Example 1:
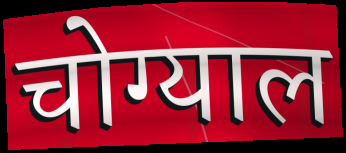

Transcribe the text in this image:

चोग्याल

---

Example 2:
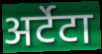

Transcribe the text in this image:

अर्टेटा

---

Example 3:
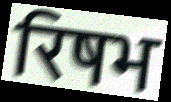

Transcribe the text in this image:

रिषभ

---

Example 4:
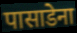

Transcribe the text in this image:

पासाडेना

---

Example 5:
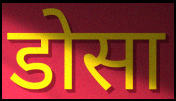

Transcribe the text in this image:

डोसा